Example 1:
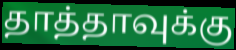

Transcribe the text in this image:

தாத்தாவுக்கு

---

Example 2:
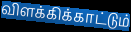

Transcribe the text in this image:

விளக்கிக்காட்டும்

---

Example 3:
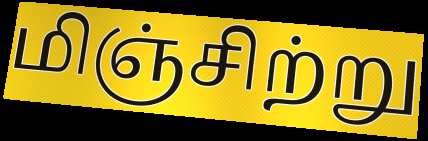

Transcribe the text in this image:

மிஞ்சிற்று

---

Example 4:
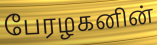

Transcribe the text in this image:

பேரழகனின்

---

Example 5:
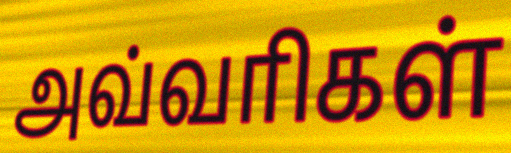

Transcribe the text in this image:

அவ்வரிகள்